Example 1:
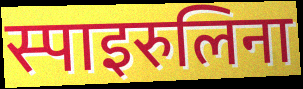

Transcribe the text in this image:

स्पाइरुलिना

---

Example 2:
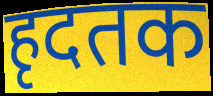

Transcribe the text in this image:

हृदतक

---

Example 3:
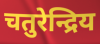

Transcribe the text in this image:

चतुरेन्द्रिय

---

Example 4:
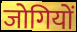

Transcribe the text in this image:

जोगियों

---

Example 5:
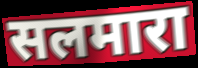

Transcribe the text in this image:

सलमारा